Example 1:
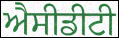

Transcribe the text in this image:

ਐਸੀਡੀਟੀ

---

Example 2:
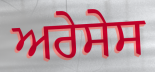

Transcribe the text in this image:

ਅਰੇਸੇਸ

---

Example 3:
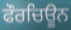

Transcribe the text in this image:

ਫੌਰਚਿਊਨ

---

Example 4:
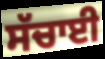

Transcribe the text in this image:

ਸੱਚਾਈ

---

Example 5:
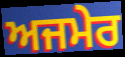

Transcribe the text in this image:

ਅਜਮੇਰ